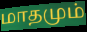
மாதமும்